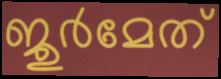
ജുർമേത്